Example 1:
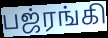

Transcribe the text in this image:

பஜ்ரங்கி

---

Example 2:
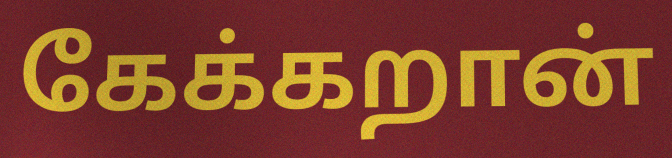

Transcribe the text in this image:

கேக்கறான்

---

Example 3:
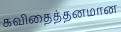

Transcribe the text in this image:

கவிதைத்தனமான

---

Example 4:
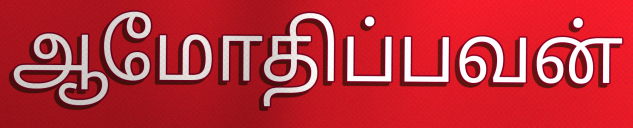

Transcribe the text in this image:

ஆமோதிப்பவன்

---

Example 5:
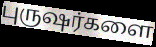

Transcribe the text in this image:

புருஷர்களை